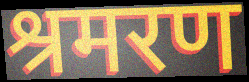
श्रमरण